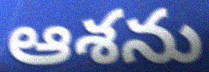
ఆశను